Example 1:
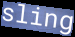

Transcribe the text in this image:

sling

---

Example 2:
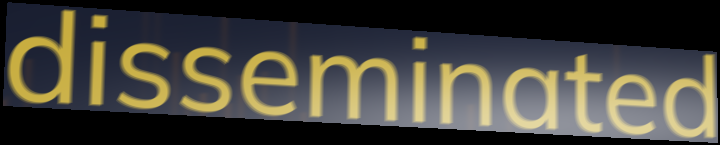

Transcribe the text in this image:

disseminated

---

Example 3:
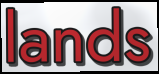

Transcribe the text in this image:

lands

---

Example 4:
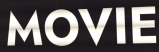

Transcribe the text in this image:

MOVIE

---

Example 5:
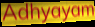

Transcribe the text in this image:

Adhyayam